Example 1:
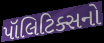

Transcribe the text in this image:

પૉલિટિક્સનો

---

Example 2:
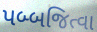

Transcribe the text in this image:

પબ્બજિત્વા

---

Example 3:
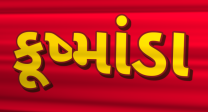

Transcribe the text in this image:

કૂષ્માંડા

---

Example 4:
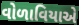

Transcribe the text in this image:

વોળાવિયાએ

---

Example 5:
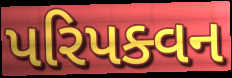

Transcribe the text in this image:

પરિપક્વન